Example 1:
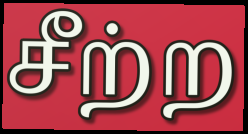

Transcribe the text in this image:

சீற்ற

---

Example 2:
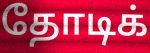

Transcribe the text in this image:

தோடிக்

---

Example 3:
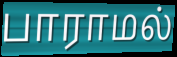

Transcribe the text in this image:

பாராமல்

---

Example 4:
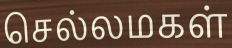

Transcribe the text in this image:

செல்லமகள்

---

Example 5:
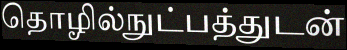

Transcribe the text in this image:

தொழில்நுட்பத்துடன்